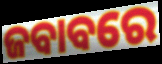
ଜବାବରେ